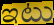
ఇటు